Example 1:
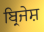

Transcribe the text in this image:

ਬ੍ਰਿਜੇਸ਼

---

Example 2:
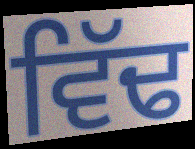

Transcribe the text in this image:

ਵਿੱਢ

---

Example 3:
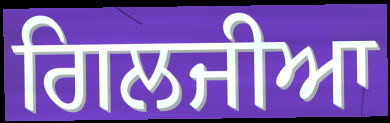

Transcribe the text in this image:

ਗਿਲਜੀਆ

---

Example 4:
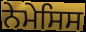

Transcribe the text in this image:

ਨੇਮੇਸਿਸ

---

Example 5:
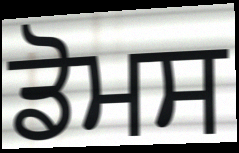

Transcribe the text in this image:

ਡੋਮਸ